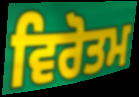
ਵਿਰੋਤਮ